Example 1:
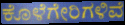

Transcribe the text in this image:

ಕೊಳೆಗೇರಿಗಳಿವೆ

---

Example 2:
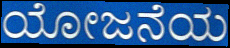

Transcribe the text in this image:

ಯೋಜನೆಯ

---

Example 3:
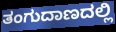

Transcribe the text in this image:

ತಂಗುದಾಣದಲ್ಲಿ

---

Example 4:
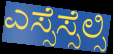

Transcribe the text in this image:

ಎಸ್ಸೆಸ್ಸೆಲ್ಸಿ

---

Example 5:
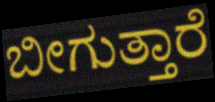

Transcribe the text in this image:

ಬೀಗುತ್ತಾರೆ